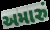
અમારું